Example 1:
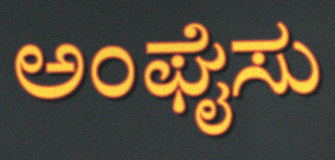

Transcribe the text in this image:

ಅಂಘೈಸು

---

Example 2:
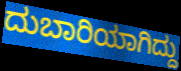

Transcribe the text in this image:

ದುಬಾರಿಯಾಗಿದ್ದು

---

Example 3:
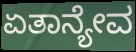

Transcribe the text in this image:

ಏತಾನ್ಯೇವ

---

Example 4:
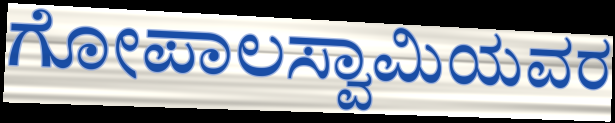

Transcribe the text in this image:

ಗೋಪಾಲಸ್ವಾಮಿಯವರ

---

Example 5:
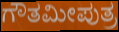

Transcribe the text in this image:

ಗೌತಮೀಪುತ್ರ